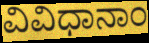
ವಿವಿಧಾನಾಂ